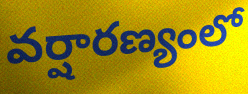
వర్షారణ్యంలో